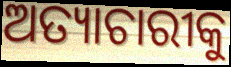
ଅତ୍ୟାଚାରୀକୁ